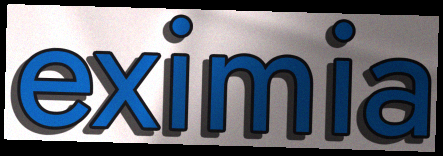
eximia